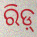
ରିଡ଼୍